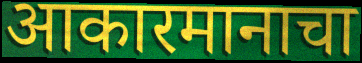
आकारमानाचा